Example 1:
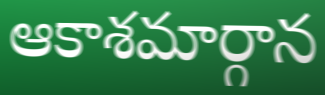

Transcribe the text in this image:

ఆకాశమార్గాన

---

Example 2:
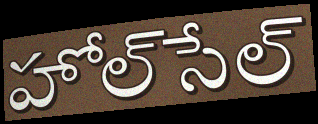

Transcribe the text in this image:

హోల్‌సేల్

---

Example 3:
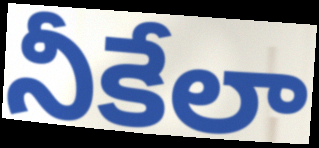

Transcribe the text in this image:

నీకేలా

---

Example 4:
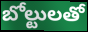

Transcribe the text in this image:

బోల్టులతో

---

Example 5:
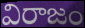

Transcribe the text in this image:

విరాజం